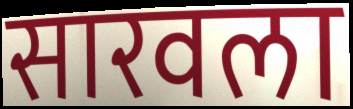
सारवला